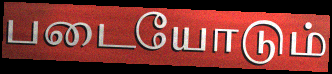
படையோடும்